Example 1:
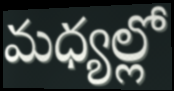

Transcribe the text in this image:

మధ్యల్లో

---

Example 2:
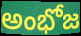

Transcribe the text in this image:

అంభోజ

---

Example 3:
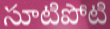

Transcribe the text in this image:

సూటిపోటి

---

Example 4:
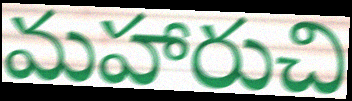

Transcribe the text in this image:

మహారుచి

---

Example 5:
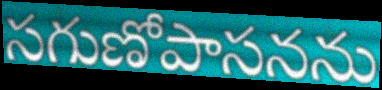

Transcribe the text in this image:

సగుణోపాసనను